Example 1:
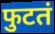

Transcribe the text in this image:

फुटतं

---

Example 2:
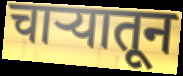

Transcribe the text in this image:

चाऱ्यातून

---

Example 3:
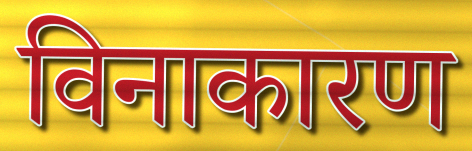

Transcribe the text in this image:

विनाकारण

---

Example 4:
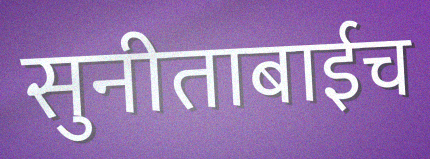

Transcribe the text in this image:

सुनीताबाईच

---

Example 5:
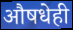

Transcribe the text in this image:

औषधेही